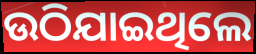
ଉଠିଯାଇଥିଲେ